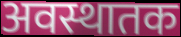
अवस्थातक